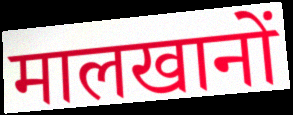
मालखानों